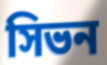
সিভন